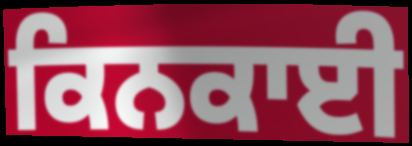
ਕਿਨਕਾਈ